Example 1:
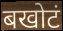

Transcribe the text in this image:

बखोटं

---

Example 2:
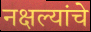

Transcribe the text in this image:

नक्षल्यांचे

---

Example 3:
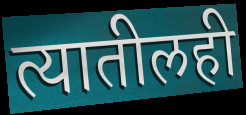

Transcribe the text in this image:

त्यातीलही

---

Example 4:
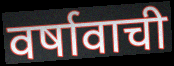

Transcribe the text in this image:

वर्षावाची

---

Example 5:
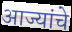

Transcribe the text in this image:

आज्यांचे